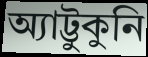
অ্যাট্টুকুনি